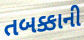
તબક્કાની